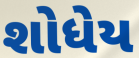
શોધેય